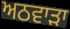
ਅਠਵਾੜਾ